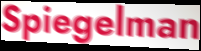
Spiegelman